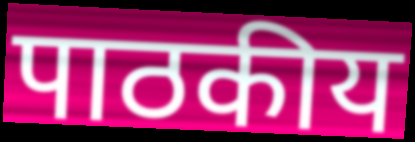
पाठकीय